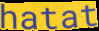
hatat